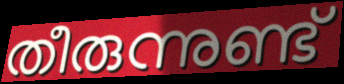
തീരുന്നുണ്ട്